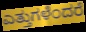
ಎತ್ತುಗಳೆಂದರೆ